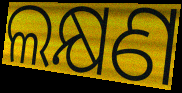
ଲକ୍ଷଣ